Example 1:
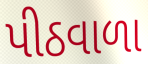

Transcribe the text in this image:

પીઠવાળા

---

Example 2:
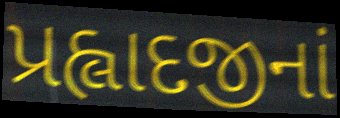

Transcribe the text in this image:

પ્રહ્લાદજીનાં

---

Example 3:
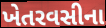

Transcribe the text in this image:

ખેતરવસીના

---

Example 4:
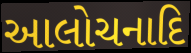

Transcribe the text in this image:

આલોચનાદિ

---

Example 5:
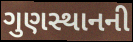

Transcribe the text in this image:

ગુણસ્થાનની